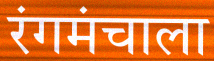
रंगमंचाला